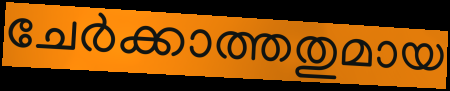
ചേർക്കാത്തതുമായ